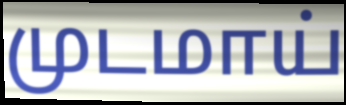
முடமாய்